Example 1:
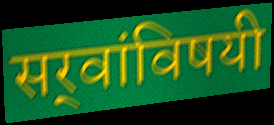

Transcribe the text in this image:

सर्वांविषयी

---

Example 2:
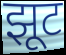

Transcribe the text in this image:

झूट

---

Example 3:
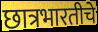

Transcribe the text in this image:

छात्रभारतीचे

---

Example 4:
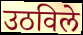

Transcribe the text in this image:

उठविले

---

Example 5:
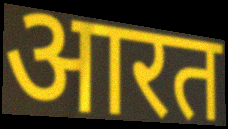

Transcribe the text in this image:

आरत